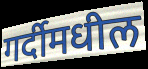
गर्दीमधील